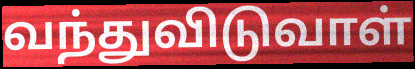
வந்துவிடுவாள்